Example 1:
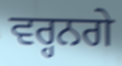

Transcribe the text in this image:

ਵਰ੍ਹਨਗੇ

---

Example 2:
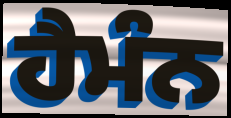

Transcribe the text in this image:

ਹੈਮੰਨ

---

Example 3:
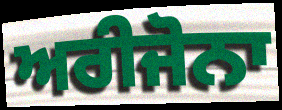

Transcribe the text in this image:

ਅਰੀਜੋਨਾ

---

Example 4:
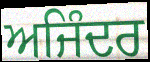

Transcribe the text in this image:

ਅਜਿੰਦਰ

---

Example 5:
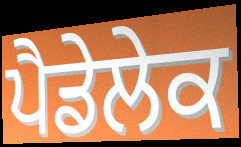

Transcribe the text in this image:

ਪੈਡੇਲੇਕ